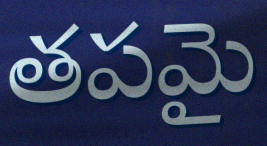
తపమై